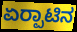
ಏರ‍್ಪಾಟಿನ